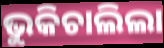
ଭୁକିଚାଲିଲା